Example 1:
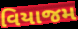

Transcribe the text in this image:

વિયાજમ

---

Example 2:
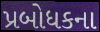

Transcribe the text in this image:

પ્રબોધકના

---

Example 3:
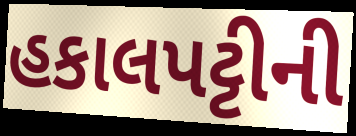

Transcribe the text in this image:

હકાલપટ્ટીની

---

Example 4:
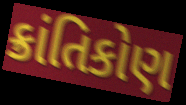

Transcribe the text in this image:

ક્રાંતિકોણ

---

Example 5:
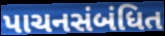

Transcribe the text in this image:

પાચનસંબંધિત